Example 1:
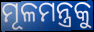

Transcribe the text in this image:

ମୂଳମନ୍ତ୍ରକୁ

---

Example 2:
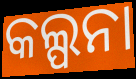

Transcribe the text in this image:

କଲ୍ପନା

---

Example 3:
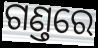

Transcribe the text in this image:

ଗଣ୍ତରେ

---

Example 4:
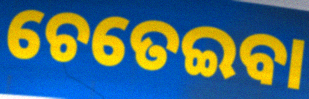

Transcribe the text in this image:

ଚେତେଇବା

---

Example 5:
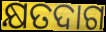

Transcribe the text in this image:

କ୍ଷତଦାଗ